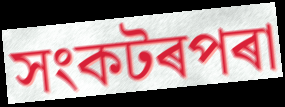
সংকটৰপৰা